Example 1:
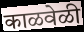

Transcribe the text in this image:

काळवेळी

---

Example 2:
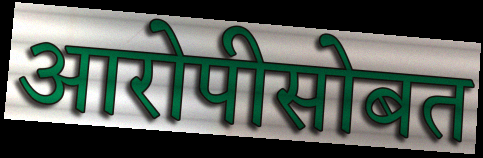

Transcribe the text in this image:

आरोपीसोबत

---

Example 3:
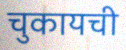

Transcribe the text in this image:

चुकायची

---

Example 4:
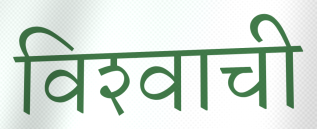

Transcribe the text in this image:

विश्वाची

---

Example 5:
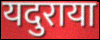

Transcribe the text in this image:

यदुराया